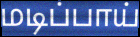
மடிப்பாய்